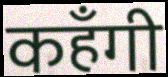
कहँगी